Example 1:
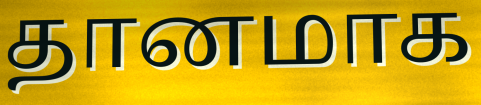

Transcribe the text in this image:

தானமாக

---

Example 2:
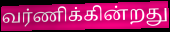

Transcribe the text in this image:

வர்ணிக்கின்றது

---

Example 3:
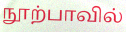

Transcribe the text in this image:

நூற்பாவில்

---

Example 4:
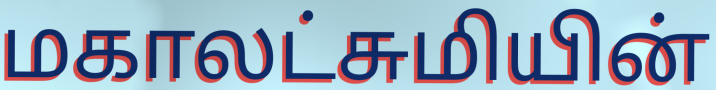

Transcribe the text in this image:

மகாலட்சுமியின்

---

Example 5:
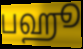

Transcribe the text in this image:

பஹூ